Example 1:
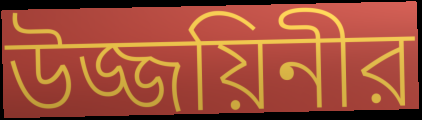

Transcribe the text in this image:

উজ্জয়িনীর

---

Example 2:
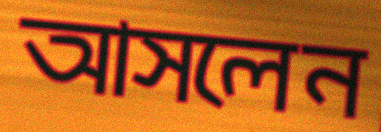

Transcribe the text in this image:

আসলেন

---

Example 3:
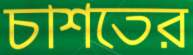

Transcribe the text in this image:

চাশতের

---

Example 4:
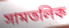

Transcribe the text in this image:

সামতলিক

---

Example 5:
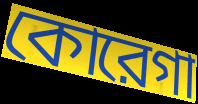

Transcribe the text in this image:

কোরেগা